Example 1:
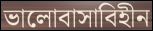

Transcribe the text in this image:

ভালোবাসাবিহীন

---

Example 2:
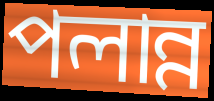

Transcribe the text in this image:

পলান্ন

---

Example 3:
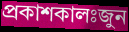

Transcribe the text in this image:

প্রকাশকালঃজুন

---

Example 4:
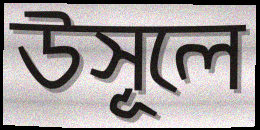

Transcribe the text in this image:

উসূলে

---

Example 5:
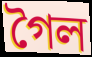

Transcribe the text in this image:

গৈল